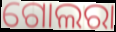
ଗୋଲରା